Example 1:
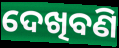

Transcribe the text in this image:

ଦେଖିବଣି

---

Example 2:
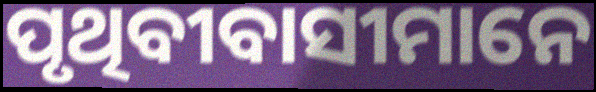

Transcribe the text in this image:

ପୃଥିବୀବାସୀମାନେ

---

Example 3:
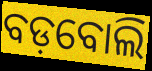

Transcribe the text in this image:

ବଡ଼ବୋଲି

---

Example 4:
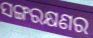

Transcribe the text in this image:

ସଙ୍ଗରକ୍ଷଣର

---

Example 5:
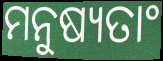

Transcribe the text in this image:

ମନୁଷ୍ୟତାଂ